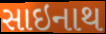
સાઇનાથ